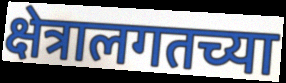
क्षेत्रालगतच्या